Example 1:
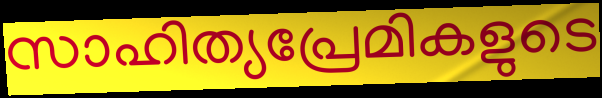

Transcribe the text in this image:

സാഹിത്യപ്രേമികളുടെ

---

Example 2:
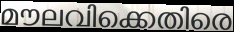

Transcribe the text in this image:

മൗലവിക്കെതിരെ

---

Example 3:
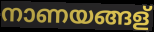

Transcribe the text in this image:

നാണയങ്ങള്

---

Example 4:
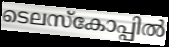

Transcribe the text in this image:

ടെലസ്കോപ്പിൽ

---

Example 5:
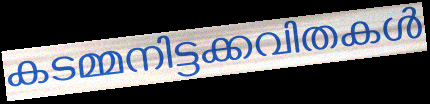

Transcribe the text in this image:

കടമ്മനിട്ടക്കവിതകൾ